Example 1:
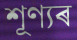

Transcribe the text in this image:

শূণ্যৰ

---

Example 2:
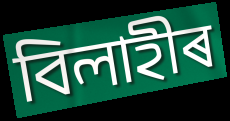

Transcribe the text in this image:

বিলাহীৰ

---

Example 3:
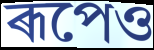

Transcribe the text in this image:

ৰূপেও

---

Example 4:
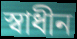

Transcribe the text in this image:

স্বাধীন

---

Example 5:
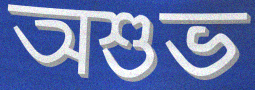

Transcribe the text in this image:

অশুভ